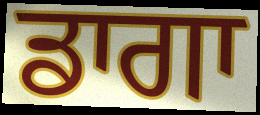
ਡਾਗਾ